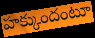
హక్కుందంటూ